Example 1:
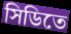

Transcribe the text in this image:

সিডিতে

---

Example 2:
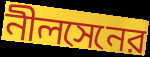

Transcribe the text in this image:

নীলসেনের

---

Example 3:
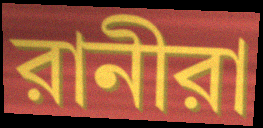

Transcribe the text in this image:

রানীরা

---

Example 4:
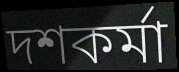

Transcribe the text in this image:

দশকর্মা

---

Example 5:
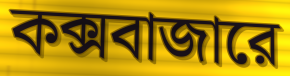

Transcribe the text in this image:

কক্সবাজারে